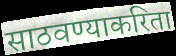
साठवण्याकरिता